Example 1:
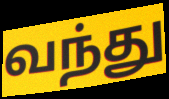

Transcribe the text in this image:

வந்து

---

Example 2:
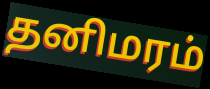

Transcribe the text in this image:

தனிமரம்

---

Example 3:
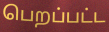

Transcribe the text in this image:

பெறப்பட்ட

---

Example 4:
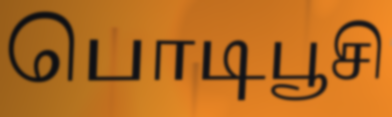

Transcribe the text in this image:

பொடிபூசி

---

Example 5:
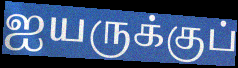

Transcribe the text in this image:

ஐயருக்குப்